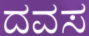
ದವಸ